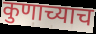
कुणाच्याच